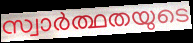
സ്വാർത്ഥതയുടെ